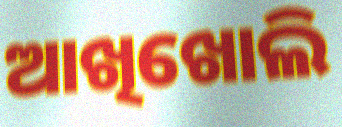
ଆଖିଖୋଲି